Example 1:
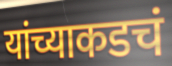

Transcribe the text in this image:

यांच्याकडचं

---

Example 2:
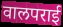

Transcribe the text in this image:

वालपराई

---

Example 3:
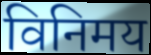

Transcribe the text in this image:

विनिमय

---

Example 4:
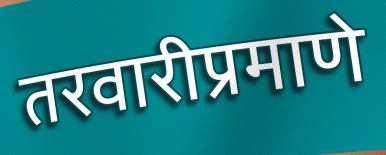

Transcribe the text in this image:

तरवारीप्रमाणे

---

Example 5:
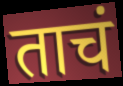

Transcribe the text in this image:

ताचं